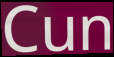
Cun